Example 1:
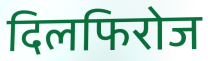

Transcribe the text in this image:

दिलफिरोज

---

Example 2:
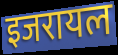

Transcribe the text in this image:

इजरायल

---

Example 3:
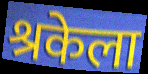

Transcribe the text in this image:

श्रकेला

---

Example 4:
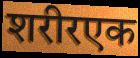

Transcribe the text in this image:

शरीरएक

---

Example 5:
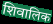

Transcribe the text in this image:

शिवालिक